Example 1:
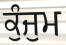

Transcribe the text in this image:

ਕੁੰਜੁਮ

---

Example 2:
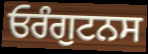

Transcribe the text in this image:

ਓਰੰਗੁਟਨਸ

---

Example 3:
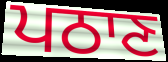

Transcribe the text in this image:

ਪਠਾਣ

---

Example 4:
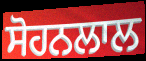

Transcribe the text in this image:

ਸੋਹਨਲਾਲ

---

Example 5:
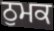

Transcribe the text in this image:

ਠੁਮਕ